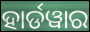
ହାର୍ଡୱାର